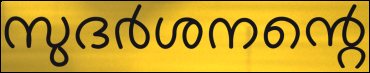
സുദർശനന്റെ